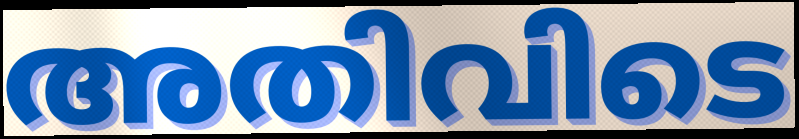
അതിവിടെ